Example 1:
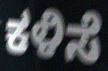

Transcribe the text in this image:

ಕಳಿಸೆ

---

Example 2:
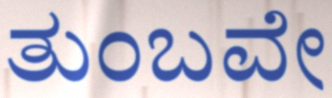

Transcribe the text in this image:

ತುಂಬವೇ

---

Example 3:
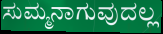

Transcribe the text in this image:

ಸುಮ್ಮನಾಗುವುದಲ್ಲ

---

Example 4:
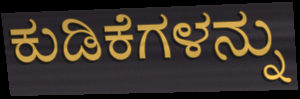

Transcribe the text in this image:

ಕುಡಿಕೆಗಳನ್ನು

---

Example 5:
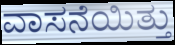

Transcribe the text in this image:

ವಾಸನೆಯಿತ್ತು